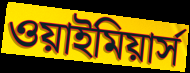
ওয়াইমিয়ার্স